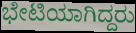
ಭೇಟಿಯಾಗಿದ್ದರು